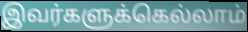
இவர்களுக்கெல்லாம்